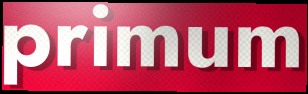
primum